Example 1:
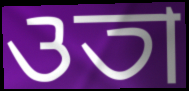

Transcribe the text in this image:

ওতা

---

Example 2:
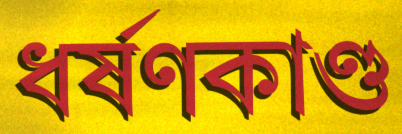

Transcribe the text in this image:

ধর্ষণকাণ্ড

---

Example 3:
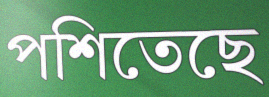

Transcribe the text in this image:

পশিতেছে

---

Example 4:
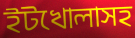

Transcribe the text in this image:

ইটখোলাসহ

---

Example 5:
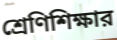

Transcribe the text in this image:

শ্রেণিশিক্ষার